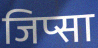
जिप्सा